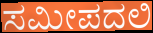
ಸಮೀಪದಲಿ